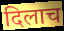
दिलाच